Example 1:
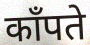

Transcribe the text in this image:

काँपते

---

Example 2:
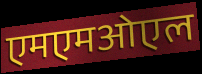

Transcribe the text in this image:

एमएमओएल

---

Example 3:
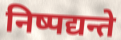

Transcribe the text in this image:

निष्पद्यन्ते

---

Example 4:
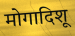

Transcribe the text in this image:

मोगादिशू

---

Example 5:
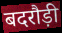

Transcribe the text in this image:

बदरौड़ी